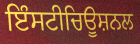
ਇੰਸਟੀਚਿਊਸ਼ਨਲ